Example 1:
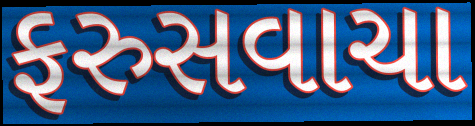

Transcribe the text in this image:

ફરુસવાચા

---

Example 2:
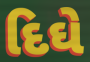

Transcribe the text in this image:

દિઘે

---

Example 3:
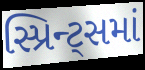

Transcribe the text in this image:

સ્પ્રિન્ટ્સમાં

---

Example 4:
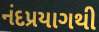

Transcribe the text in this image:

નંદપ્રયાગથી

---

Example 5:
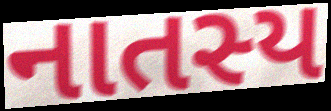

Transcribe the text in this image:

નાતસ્ય